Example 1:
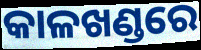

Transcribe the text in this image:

କାଳଖଣ୍ଡରେ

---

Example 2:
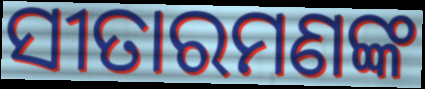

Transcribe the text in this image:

ସୀତାରମଣଙ୍କ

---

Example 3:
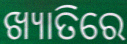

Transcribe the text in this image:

ଖ୍ୟାତିରେ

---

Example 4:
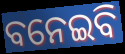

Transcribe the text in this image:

ବନେଇବି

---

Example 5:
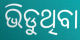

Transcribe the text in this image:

ଭିଡୁଥିବା